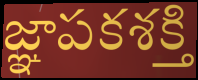
జ్ఞాపకశక్తి